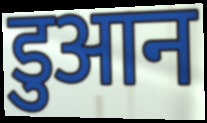
डुआन